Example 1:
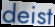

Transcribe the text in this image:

deist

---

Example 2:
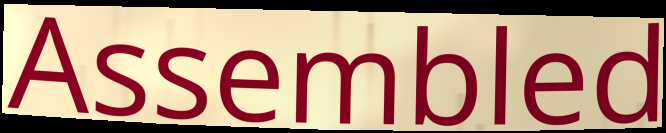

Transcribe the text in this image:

Assembled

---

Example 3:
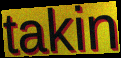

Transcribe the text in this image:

takin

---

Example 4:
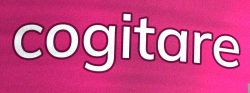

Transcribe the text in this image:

cogitare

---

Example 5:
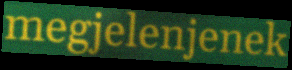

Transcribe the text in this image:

megjelenjenek